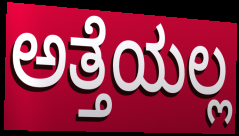
ಅತ್ತೆಯಲ್ಲ